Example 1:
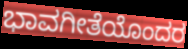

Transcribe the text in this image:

ಭಾವಗೀತೆಯೊಂದರ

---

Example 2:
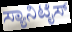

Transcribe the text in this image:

ಸ್ಯಾನಿಟೈಸ್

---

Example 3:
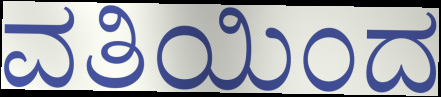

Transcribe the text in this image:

ವತಿಯಿಂದ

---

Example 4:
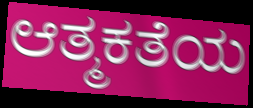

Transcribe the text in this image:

ಆತ್ಮಕತೆಯ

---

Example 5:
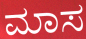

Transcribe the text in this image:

ಮಾಸ